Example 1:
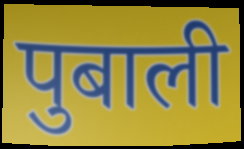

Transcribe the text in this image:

पुबाली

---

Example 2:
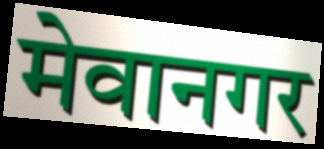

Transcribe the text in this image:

मेवानगर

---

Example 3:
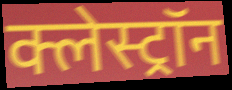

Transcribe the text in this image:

क्लेस्ट्रॉन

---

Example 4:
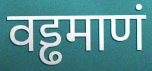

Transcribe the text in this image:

वड्ढमाणं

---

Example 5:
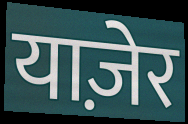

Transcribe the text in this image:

याज़ेर